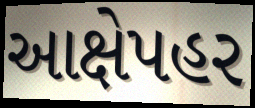
આક્ષેપહર